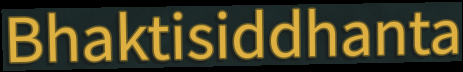
Bhaktisiddhanta